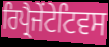
ਰਿਪ੍ਰੈਜੇਂਟੇਟਿਵਸ